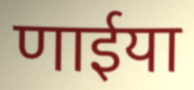
णाईया